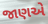
જાણએ